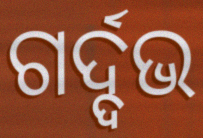
ଗର୍ଦ୍ଦଭ